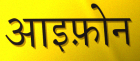
आइफ़ोन